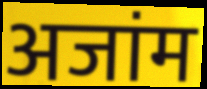
अजांम